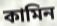
কামিন